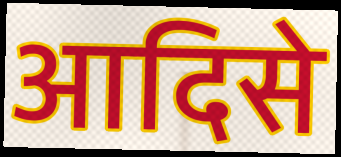
आदिसे